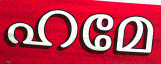
ഹമേ